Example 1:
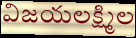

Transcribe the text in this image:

విజయలక్ష్మిల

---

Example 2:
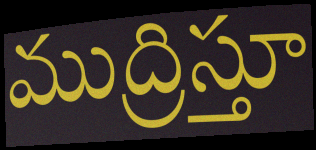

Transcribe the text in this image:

ముద్రిస్తూ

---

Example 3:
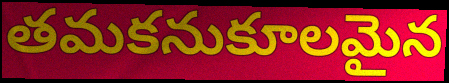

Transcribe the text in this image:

తమకనుకూలమైన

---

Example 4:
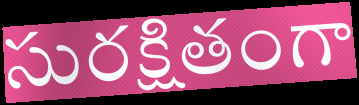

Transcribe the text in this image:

సురక్షితంగా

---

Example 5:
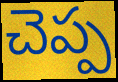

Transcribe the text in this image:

చెప్ప